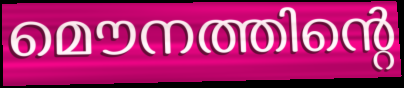
മൌനത്തിന്റെ